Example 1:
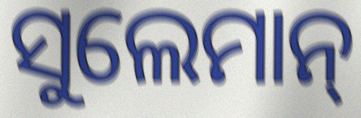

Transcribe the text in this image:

ସୁଲେମାନ୍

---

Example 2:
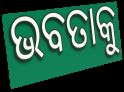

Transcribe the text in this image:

ଭବତାକୁ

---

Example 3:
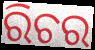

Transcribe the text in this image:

ରିଚର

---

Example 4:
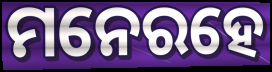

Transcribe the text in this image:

ମନେରହେ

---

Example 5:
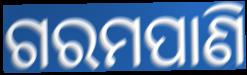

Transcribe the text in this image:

ଗରମପାଣି